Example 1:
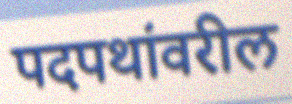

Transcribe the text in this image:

पदपथांवरील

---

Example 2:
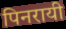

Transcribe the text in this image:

पिनरायी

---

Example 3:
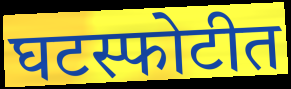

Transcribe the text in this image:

घटस्फोटीत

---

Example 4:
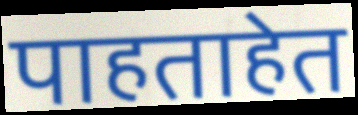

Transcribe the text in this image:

पाहताहेत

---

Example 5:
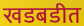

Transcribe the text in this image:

खडबडीत